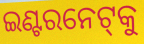
ଇଣ୍ଟରନେଟ୍‌କୁ